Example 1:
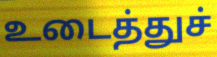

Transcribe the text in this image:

உடைத்துச்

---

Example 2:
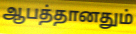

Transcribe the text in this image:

ஆபத்தானதும்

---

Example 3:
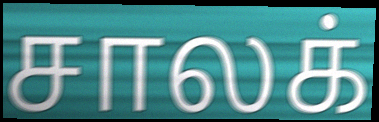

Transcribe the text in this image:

சாலக்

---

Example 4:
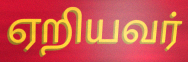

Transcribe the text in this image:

ஏறியவர்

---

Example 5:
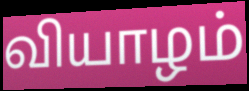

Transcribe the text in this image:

வியாழம்